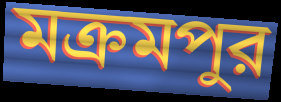
মক্রমপুর